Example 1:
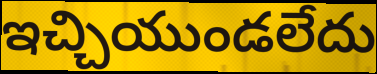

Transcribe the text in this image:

ఇచ్చియుండలేదు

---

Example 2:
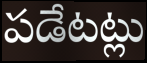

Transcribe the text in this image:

పడేటట్లు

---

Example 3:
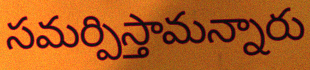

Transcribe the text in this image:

సమర్పిస్తామన్నారు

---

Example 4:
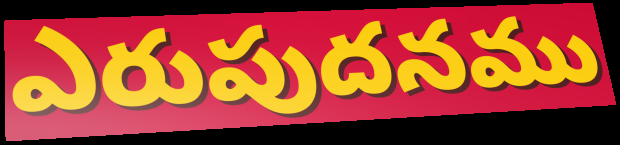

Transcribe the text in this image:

ఎరుపుదనము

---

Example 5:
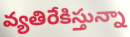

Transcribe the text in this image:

వ్యతిరేకిస్తున్నా